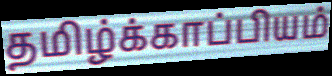
தமிழ்க்காப்பியம்